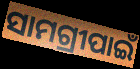
ସାମଗ୍ରୀପାଇଁ